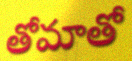
తోమాతో